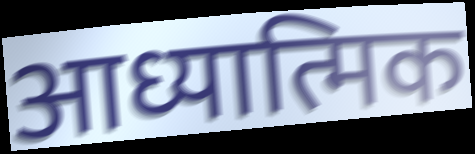
आध्यात्मिक